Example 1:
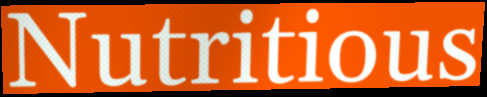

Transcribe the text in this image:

Nutritious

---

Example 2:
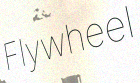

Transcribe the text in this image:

Flywheel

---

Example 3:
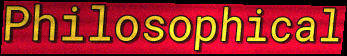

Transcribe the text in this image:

Philosophical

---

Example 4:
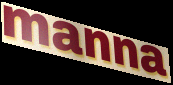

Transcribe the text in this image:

manna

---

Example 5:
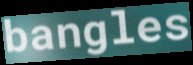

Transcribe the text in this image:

bangles